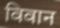
विवान